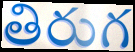
తిరుగ